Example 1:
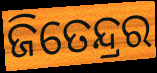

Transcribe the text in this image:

ଜିତେନ୍ଦ୍ରର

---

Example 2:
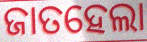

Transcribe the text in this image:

ଜାତହେଲା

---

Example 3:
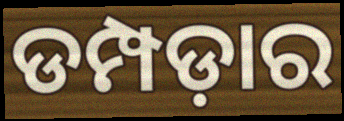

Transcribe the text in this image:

ଡମ୍ପଡ଼ାର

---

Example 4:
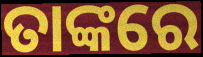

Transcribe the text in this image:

ତାଙ୍କରେ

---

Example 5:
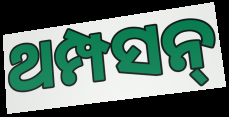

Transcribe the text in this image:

ଥମ୍ପସନ୍